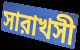
সারাখসী